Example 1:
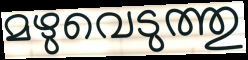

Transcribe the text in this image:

മഴുവെടുത്തു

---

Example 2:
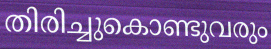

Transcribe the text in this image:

തിരിച്ചുകൊണ്ടുവരും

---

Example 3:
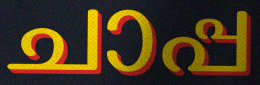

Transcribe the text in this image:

ചാപ്പ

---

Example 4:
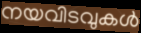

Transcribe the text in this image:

നയവിടവുകൾ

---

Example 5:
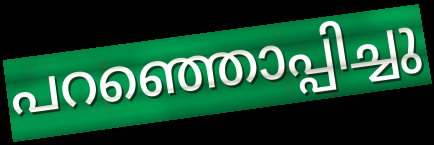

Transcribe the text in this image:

പറഞ്ഞൊപ്പിച്ചു